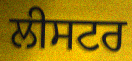
ਲੀਸਟਰ